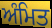
ਅੰਮਿਤ